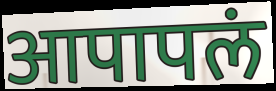
आपापलं